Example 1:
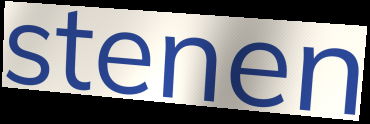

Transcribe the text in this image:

stenen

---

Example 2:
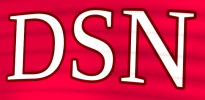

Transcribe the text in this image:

DSN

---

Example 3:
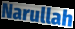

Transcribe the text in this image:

Narullah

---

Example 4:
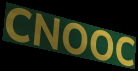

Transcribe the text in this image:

CNOOC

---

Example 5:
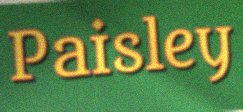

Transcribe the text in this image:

Paisley